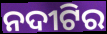
ନଦୀଟିର